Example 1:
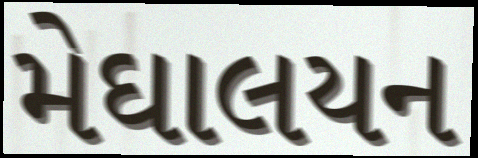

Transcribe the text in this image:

મેઘાલયન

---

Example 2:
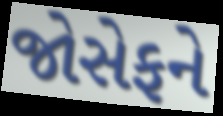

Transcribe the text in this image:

જોસેફને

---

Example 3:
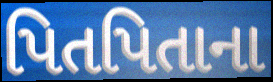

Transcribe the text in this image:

પિતપિતાના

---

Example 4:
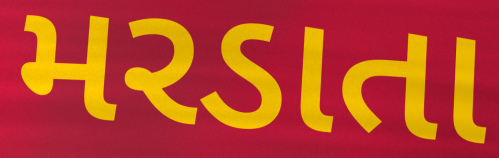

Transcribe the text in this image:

મરડાતા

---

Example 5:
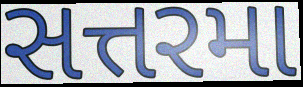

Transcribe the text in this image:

સત્તરમા